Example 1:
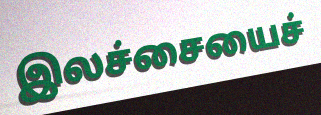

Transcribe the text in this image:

இலச்சையைச்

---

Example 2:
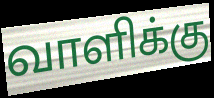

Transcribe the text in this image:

வாளிக்கு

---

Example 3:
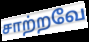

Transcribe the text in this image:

சாற்றவே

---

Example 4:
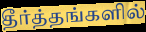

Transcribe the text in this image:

தீர்த்தங்களில்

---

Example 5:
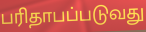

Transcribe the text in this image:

பரிதாபப்படுவது